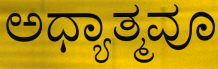
ಅಧ್ಯಾತ್ಮವೂ